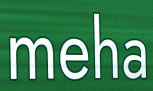
meha